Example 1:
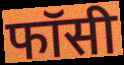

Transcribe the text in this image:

फॉसी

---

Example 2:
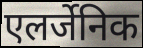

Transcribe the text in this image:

एलर्जेनिक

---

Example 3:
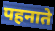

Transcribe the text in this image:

पहनाते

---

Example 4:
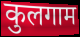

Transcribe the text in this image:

कुलगाम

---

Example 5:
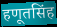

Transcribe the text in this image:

हणूतसिंह